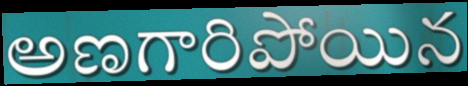
అణగారిపోయిన